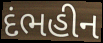
દંભહીન